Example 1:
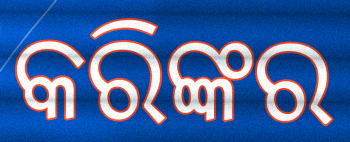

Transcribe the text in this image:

କରିଙ୍କର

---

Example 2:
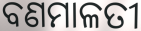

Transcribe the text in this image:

ବଣମାଳତୀ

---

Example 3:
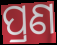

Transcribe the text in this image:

ପ୍ରଣ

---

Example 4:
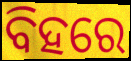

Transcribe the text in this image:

ବିହରେ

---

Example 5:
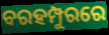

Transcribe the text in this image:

ବରହମ୍ପୁରରେ